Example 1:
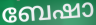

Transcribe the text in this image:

ബേഷാ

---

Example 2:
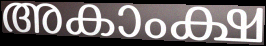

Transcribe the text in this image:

അകാംക്ഷ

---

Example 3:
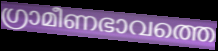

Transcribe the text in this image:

ഗ്രാമീണഭാവത്തെ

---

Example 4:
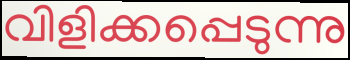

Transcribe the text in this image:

വിളിക്കപ്പെടുന്നു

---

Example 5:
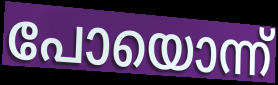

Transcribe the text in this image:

പോയൊന്ന്